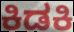
ಕಿಡಕಿ